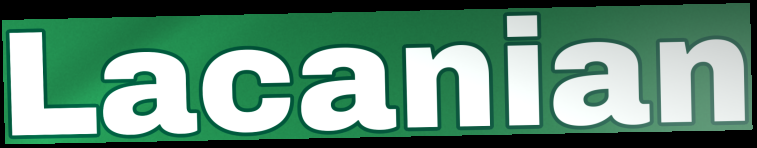
Lacanian